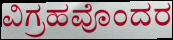
ವಿಗ್ರಹವೊಂದರ